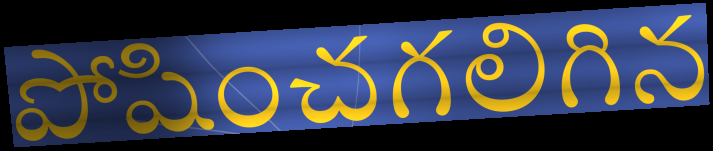
పోషించగలిగిన